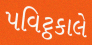
પવિટ્ઠકાલે